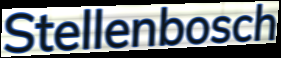
Stellenbosch